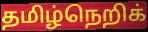
தமிழ்நெறிக்